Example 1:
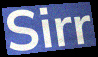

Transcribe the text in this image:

Sirr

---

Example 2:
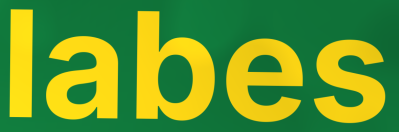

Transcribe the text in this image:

Iabes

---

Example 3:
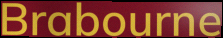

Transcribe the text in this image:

Brabourne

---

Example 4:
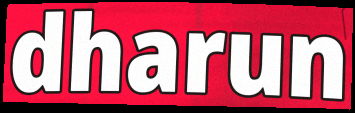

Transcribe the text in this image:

dharun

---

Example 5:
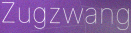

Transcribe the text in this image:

Zugzwang